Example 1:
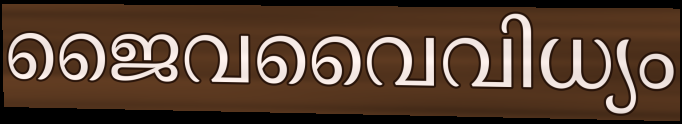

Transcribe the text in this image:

ജൈവവൈവിധ്യം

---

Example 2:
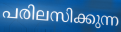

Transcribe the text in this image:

പരിലസിക്കുന്ന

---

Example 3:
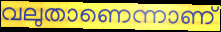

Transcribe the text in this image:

വലുതാണെന്നാണ്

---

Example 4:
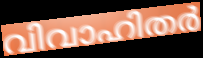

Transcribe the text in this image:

വിവാഹിതർ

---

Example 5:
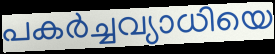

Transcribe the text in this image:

പകർച്ചവ്യാധിയെ